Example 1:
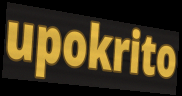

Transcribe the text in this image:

upokrito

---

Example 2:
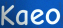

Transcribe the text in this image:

Kaeo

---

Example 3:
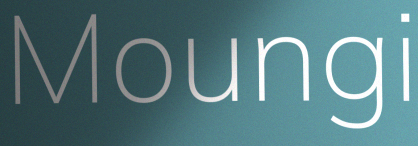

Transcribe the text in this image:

Moungi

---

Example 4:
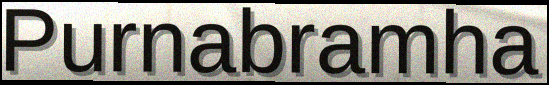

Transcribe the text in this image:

Purnabramha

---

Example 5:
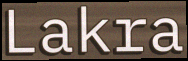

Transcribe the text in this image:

Lakra